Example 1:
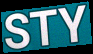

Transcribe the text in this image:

STY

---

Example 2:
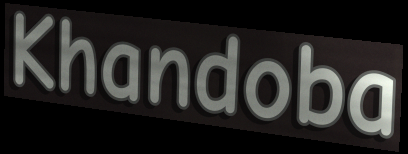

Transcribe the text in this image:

Khandoba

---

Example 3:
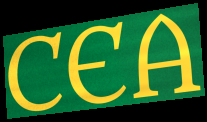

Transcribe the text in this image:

CEA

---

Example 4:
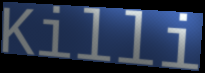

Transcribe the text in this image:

Killi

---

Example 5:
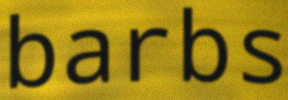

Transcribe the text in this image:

barbs